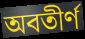
অবতীর্ণ